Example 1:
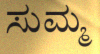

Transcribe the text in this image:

ಸುಮ್ಮ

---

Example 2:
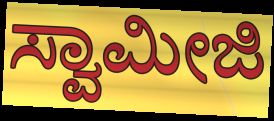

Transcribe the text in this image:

ಸ್ವಾಮೀಜಿ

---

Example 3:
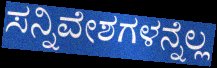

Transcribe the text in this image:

ಸನ್ನಿವೇಶಗಳನ್ನೆಲ್ಲ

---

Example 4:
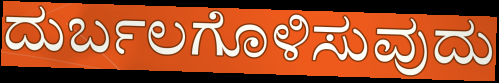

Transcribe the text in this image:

ದುರ್ಬಲಗೊಳಿಸುವುದು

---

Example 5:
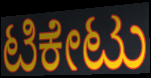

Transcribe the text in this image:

ಟಿಕೇಟು